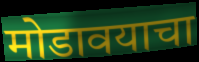
मोडावयाचा